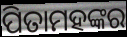
ପିତାମହଙ୍କର